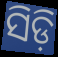
ସିଡ଼ି